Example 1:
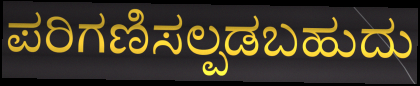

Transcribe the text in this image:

ಪರಿಗಣಿಸಲ್ಪಡಬಹುದು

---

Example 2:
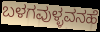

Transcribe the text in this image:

ಬಳಗವುಳ್ಳವನಹೆ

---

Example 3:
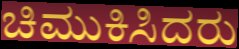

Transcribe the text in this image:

ಚಿಮುಕಿಸಿದರು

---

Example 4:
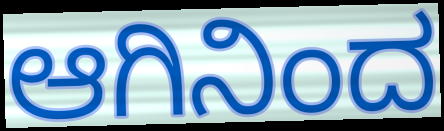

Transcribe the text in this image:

ಆಗಿನಿಂದ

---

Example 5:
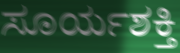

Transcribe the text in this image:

ಸೂರ್ಯಶಕ್ತಿ